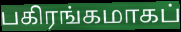
பகிரங்கமாகப்